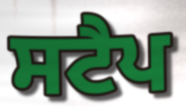
ਸਟੈਪ